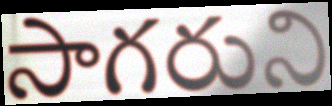
సాగరుని